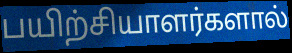
பயிற்சியாளர்களால்